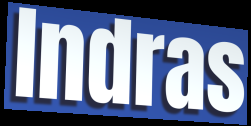
Indras